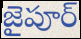
జైపూర్